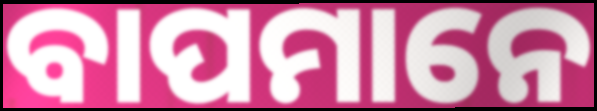
ବାପମାନେ